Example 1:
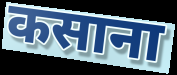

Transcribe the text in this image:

कसाना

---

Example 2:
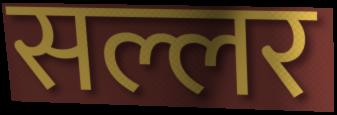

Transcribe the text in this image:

सल्लर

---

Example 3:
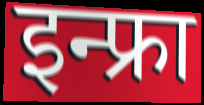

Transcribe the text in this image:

इन्फ्रा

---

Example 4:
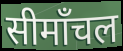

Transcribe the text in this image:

सीमाँचल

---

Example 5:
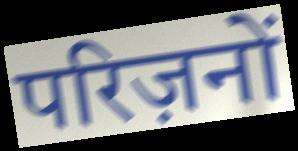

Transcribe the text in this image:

परिज़नों